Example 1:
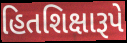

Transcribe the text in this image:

હિતશિક્ષારૂપે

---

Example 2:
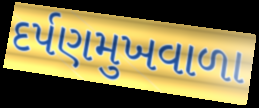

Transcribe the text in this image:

દર્પણમુખવાળા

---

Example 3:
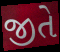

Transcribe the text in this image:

જીતે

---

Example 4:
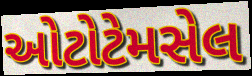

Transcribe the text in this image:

ઓટોટેમસેલ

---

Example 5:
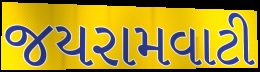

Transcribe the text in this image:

જયરામવાટી